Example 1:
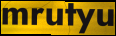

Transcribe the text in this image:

mrutyu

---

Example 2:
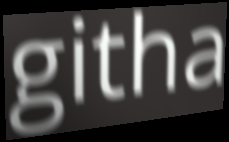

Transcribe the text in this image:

githa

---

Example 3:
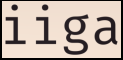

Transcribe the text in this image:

iiga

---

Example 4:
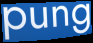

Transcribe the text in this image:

pung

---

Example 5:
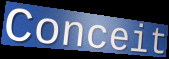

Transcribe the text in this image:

Conceit